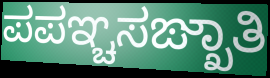
ಪಪಞ್ಚಸಙ್ಖಾತಿ